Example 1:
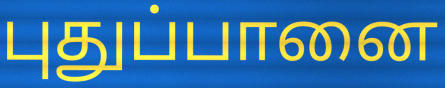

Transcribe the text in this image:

புதுப்பானை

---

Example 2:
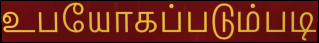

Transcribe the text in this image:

உபயோகப்படும்படி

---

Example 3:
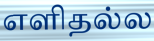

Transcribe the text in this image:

எளிதல்ல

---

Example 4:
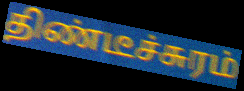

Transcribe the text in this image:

திண்டீச்சுரம்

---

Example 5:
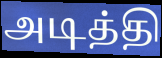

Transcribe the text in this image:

அடித்தி